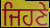
ਜਿਹਣੇ